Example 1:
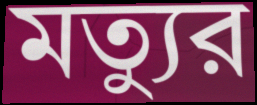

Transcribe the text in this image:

মত্যুর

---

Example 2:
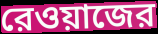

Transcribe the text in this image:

রেওয়াজের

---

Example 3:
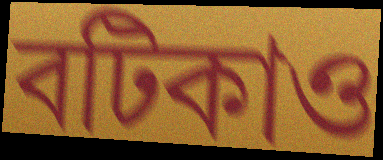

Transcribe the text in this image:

বটিকাও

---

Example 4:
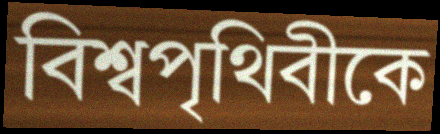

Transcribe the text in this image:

বিশ্বপৃথিবীকে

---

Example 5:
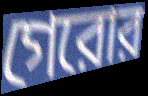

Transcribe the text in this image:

গেরোর